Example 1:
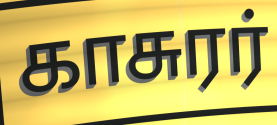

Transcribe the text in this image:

காசுரர்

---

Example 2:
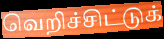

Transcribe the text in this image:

வெறிச்சிட்டுக்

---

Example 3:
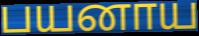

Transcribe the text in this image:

பயனாய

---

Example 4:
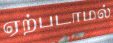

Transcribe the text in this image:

ஏற்படாமல்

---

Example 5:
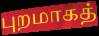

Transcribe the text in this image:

புறமாகத்